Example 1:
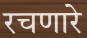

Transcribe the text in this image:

रचणारे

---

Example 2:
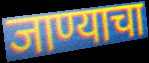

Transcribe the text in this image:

जाण्‍याचा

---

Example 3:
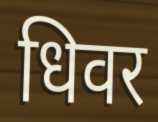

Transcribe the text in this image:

धिवर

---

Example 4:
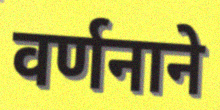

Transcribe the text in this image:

वर्णनाने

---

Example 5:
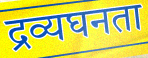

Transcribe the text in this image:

द्रव्यघनता